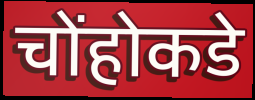
चोंहोकडे